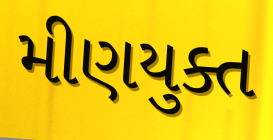
મીણયુક્ત